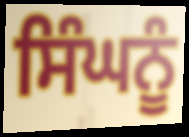
ਸਿੰਘਨੂੰ